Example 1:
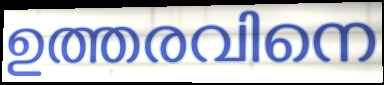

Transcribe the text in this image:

ഉത്തരവിനെ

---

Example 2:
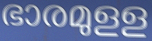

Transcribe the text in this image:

ഭാരമുളള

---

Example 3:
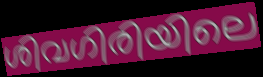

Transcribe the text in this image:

ശിവഗിരിയിലെ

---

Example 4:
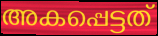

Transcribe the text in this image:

അകപ്പെട്ടത്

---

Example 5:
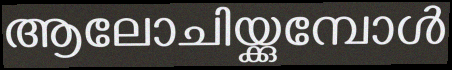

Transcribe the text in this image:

ആലോചിയ്ക്കുമ്പോൾ